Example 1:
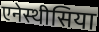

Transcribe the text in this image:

एनेस्थीसिया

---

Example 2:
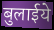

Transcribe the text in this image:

बुलाईये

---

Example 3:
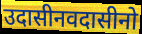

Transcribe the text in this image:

उदासीनवदासीनो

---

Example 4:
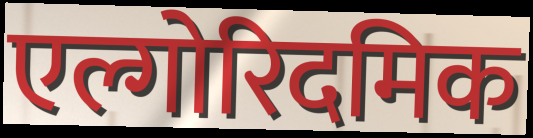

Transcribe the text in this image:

एल्गोरिदमिक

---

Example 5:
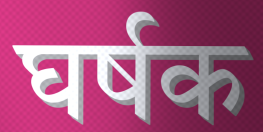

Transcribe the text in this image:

घर्षक